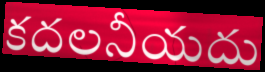
కదలనీయదు